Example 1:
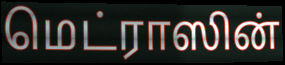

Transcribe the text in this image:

மெட்ராஸின்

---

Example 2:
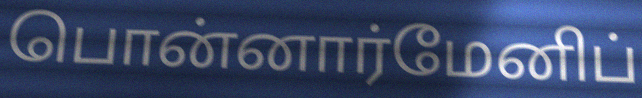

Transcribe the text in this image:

பொன்னார்மேனிப்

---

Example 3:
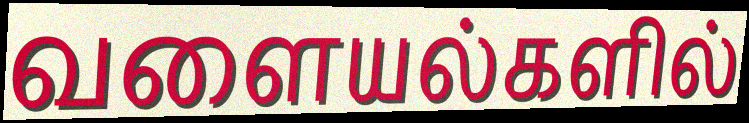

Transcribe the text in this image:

வளையல்களில்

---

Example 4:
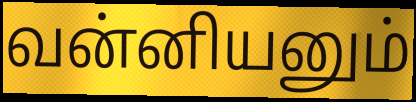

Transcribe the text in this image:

வன்னியனும்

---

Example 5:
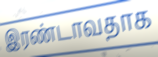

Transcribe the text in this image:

இரண்டாவதாக